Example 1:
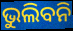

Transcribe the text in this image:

ଭୁଲିବନି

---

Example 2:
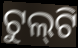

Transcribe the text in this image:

ଟୁଲ୍‌ଟି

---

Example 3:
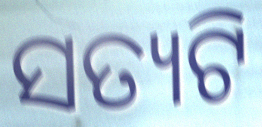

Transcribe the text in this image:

ସତ୍ୟଟି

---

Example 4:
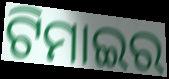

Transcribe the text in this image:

ଟିମାଇର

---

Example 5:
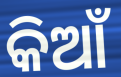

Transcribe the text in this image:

କିଆଁ